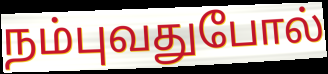
நம்புவதுபோல்